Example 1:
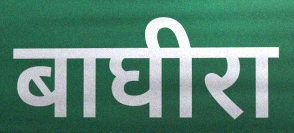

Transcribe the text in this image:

बाघीरा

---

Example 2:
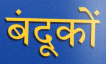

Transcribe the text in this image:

बंदूकों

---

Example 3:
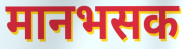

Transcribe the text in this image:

मानभसक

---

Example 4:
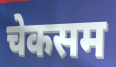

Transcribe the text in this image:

चेकसम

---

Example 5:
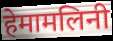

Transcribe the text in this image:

हेमामलिनी